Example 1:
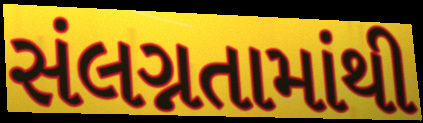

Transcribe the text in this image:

સંલગ્નતામાંથી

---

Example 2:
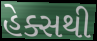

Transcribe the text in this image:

હેક્સથી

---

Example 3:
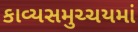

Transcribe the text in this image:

કાવ્યસમુચ્ચયમાં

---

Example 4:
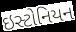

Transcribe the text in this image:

ઇસ્ટોનિયન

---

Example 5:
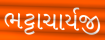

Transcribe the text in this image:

ભટ્ટાચાર્યજી